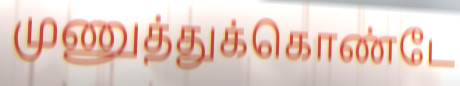
முணுத்துக்கொண்டே